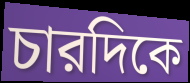
চারদিকে